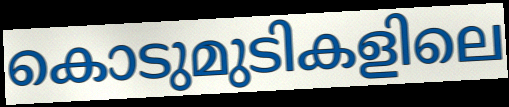
കൊടുമുടികളിലെ